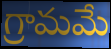
గ్రామమే